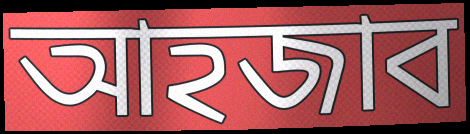
আহজাব